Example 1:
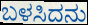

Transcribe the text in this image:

ಬಳಸಿದನು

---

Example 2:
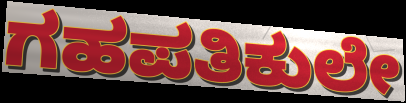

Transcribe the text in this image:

ಗಹಪತಿಕುಲೇ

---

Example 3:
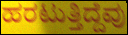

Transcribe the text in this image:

ಹರಟುತ್ತಿದ್ದೆವು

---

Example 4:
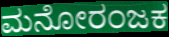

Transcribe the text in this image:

ಮನೋರಂಜಕ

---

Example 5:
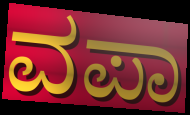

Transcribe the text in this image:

ವಪಾ